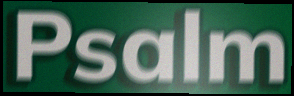
Psalm